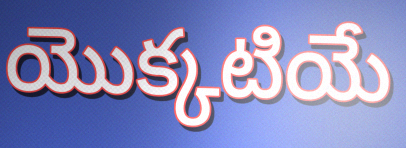
యొక్కటియే